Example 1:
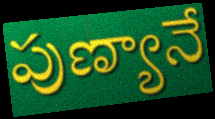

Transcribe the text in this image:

పుణ్యానే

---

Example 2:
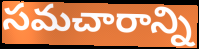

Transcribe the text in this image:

సమచారాన్ని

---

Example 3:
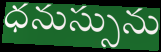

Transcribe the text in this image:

ధనుస్సును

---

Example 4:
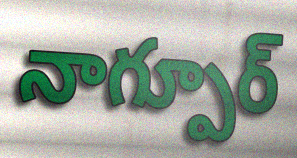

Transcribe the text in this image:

నాగ్పూర్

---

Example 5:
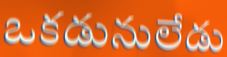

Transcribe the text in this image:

ఒకడునులేడు